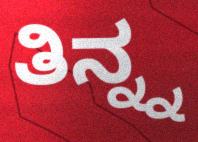
ತಿನ್ನ್ನ